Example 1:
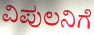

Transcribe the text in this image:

ವಿಪುಲನಿಗೆ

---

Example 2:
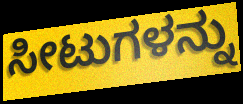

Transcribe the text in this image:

ಸೀಟುಗಳನ್ನು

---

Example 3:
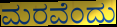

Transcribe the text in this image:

ಮರವೆಂದು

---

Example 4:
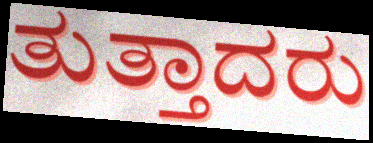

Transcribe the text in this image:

ತುತ್ತಾದರು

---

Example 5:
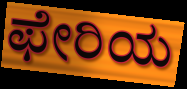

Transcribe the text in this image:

ಫೇರಿಯ